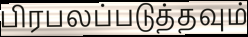
பிரபலப்படுத்தவும்